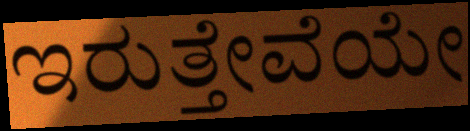
ಇರುತ್ತೇವೆಯೇ